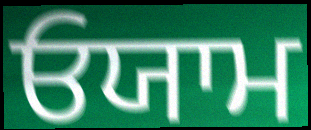
ਓਯਾਮ